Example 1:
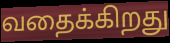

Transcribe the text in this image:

வதைக்கிறது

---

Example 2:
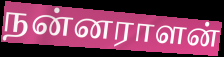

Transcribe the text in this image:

நன்னராளன்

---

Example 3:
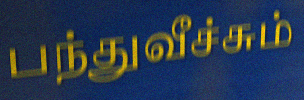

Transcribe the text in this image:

பந்துவீச்சும்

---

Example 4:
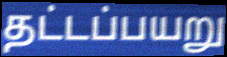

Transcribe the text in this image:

தட்டப்பயறு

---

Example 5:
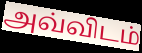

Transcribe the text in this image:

அவ்விடம்